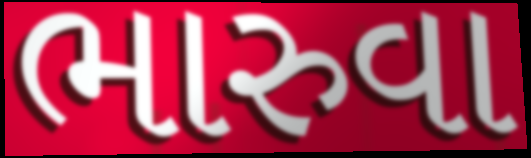
ભારુવા